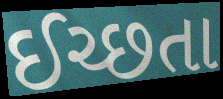
ઈચ્છતા